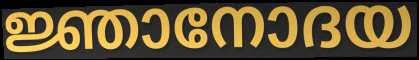
ജ്ഞാനോദയ